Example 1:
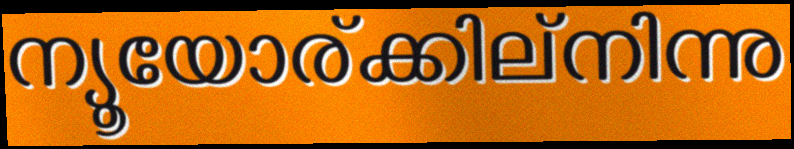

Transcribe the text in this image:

ന്യൂയോര്ക്കില്നിന്നു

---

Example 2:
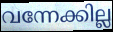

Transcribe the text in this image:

വന്നേക്കില്ല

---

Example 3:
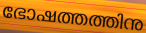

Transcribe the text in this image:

ഭോഷത്തത്തിനു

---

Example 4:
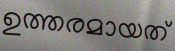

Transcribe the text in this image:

ഉത്തരമായത്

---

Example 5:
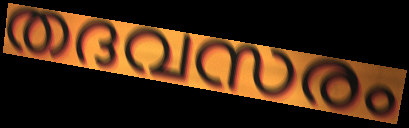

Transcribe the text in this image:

തദവസരം